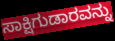
ಸಾಕ್ಷಿಗುಡಾರವನ್ನು